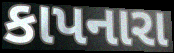
કાપનારા